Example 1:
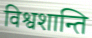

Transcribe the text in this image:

विश्वशान्ति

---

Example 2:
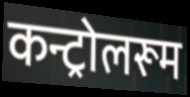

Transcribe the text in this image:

कन्ट्रोलरूम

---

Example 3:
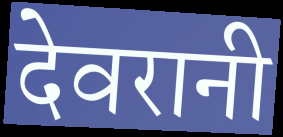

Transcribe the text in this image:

देवरानी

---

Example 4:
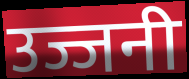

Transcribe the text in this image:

उज्जनी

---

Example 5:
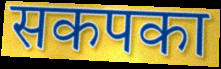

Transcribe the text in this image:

सकपका